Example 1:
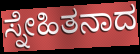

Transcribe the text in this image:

ಸ್ನೇಹಿತನಾದ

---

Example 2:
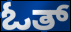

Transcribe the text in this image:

ಓತ್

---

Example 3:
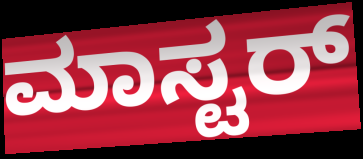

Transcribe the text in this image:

ಮಾಸ್ಟರ್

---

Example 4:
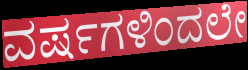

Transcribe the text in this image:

ವರ್ಷಗಳಿಂದಲೇ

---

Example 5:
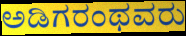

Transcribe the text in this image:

ಅಡಿಗರಂಥವರು